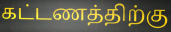
கட்டணத்திற்கு